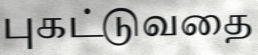
புகட்டுவதை